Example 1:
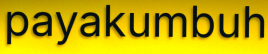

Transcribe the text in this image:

payakumbuh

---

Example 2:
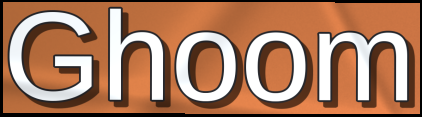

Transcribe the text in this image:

Ghoom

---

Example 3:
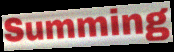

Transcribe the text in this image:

Summing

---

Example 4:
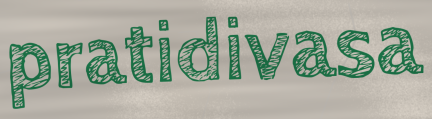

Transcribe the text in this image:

pratidivasa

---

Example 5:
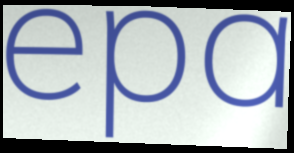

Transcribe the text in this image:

epa